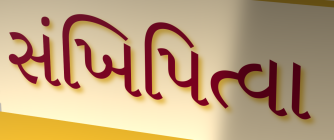
સંખિપિત્વા